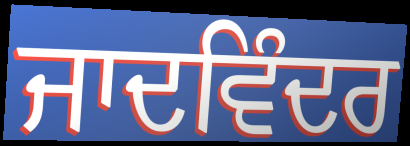
ਜਾਦਵਿੰਦਰ